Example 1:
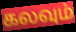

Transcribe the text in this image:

கலவும்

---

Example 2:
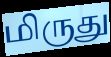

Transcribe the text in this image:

மிருது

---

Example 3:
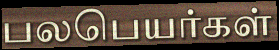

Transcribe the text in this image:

பலபெயர்கள்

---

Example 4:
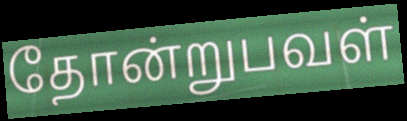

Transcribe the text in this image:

தோன்றுபவள்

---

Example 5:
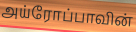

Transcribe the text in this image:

அய்ரோப்பாவின்